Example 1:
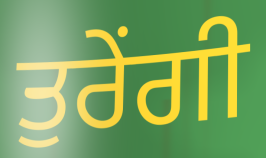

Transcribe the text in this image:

ਤੁਰੇਂਗੀ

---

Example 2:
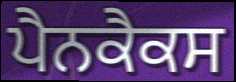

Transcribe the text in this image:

ਪੈਨਕੈਕਸ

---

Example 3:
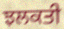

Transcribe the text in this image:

ਝਲਕਤੀ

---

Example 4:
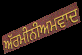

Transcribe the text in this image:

ਅੱਰਮੀਨੀਅਮਵਾਦ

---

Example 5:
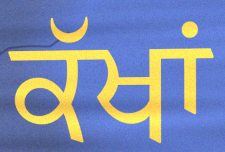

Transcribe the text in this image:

ਕੱਖਾਂ